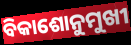
ବିକାଶୋନୁମୁଖୀ